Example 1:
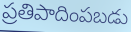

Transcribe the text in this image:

ప్రతిపాదింపబడు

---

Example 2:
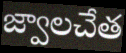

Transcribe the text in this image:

జ్వాలచేత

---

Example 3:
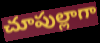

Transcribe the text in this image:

చూపుల్లాగా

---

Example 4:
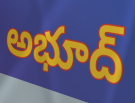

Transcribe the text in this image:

అభూద్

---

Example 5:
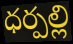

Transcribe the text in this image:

ధర్పల్లి